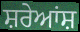
ਸ਼ਰੇਆਂਸ਼